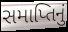
સમાપ્તિનું